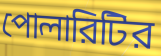
পোলারিটির